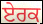
ਏਰਕ